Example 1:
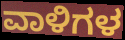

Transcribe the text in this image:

ವಾಳಿಗಳ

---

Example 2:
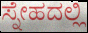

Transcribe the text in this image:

ಸ್ನೇಹದಲ್ಲಿ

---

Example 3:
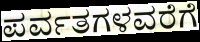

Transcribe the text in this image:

ಪರ್ವತಗಳವರೆಗೆ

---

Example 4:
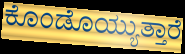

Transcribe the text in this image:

ಕೊಂಡೊಯ್ಯುತ್ತಾರೆ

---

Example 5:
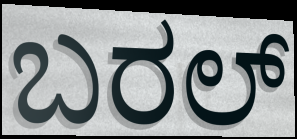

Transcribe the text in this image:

ಬರಲ್